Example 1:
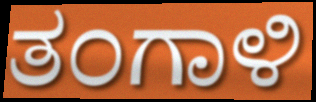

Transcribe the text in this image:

ತಂಗಾಳಿ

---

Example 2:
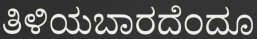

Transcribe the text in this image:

ತಿಳಿಯಬಾರದೆಂದೂ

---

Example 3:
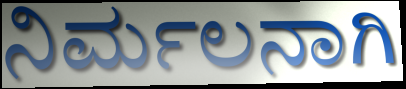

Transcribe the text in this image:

ನಿರ್ಮಲನಾಗಿ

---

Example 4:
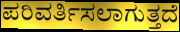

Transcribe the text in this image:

ಪರಿವರ್ತಿಸಲಾಗುತ್ತದೆ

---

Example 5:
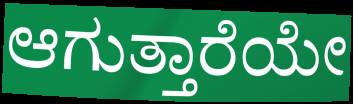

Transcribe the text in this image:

ಆಗುತ್ತಾರೆಯೇ